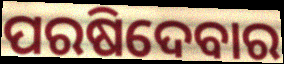
ପରଷିଦେବାର